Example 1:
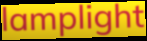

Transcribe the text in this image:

lamplight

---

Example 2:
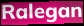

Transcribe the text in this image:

Ralegan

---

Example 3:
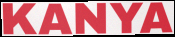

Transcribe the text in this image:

KANYA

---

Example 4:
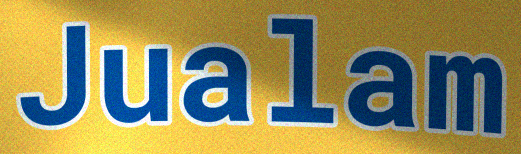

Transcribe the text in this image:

Jualam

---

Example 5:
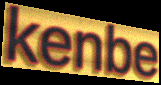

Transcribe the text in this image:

kenbe